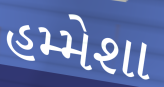
હમ્મેશા